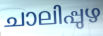
ചാലിപ്പുഴ